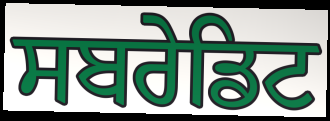
ਸਬਰੇਡਿਟ